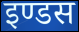
इण्डस